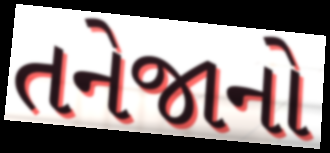
તનેજાનો